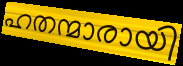
ഹതന്മാരായി